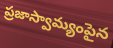
ప్రజాస్వామ్యంపైన